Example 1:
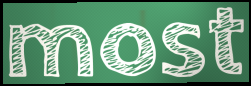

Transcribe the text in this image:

most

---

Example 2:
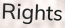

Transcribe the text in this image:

Rights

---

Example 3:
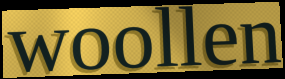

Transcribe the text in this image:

woollen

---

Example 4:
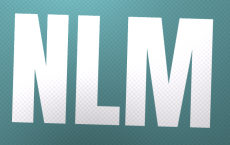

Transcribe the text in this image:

NLM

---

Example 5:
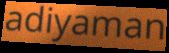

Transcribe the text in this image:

adiyaman